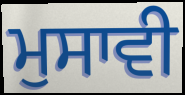
ਮੁਸਾਵੀ